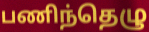
பணிந்தெழு